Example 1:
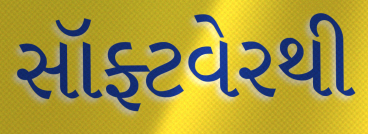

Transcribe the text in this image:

સૉફ્ટવેરથી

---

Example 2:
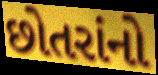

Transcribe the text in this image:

છોતરાંનો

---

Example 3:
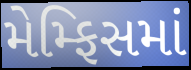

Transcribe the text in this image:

મેમ્ફિસમાં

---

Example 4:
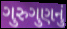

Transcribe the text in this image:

ગુરુગુણનું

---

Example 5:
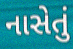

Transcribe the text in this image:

નાસેતું